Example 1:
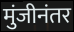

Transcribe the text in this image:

मुंजीनंतर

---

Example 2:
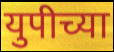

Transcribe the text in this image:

युपीच्या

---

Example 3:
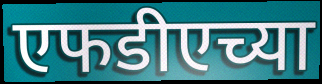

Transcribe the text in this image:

एफडीएच्या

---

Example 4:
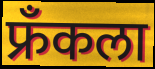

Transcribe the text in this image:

फ्रॅंकला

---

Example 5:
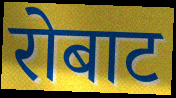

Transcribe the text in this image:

रोबाट